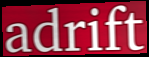
adrift